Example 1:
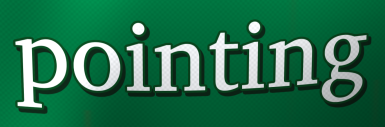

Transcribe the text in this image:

pointing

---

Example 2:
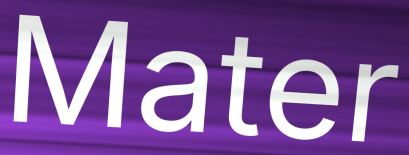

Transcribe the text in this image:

Mater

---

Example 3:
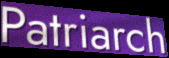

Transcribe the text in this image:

Patriarch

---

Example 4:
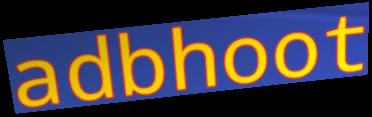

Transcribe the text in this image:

adbhoot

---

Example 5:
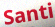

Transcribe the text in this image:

Santi